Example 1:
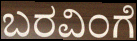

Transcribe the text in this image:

ಬರವಿಂಗೆ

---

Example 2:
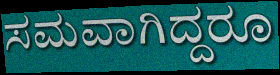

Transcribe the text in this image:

ಸಮವಾಗಿದ್ದರೂ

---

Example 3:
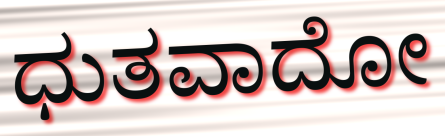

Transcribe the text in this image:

ಧುತವಾದೋ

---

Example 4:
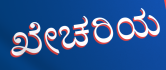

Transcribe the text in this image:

ಖೇಚರಿಯ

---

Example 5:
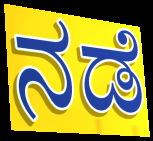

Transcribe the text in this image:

ನಡೆ